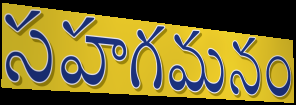
సహగమనం